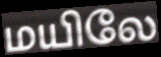
மயிலே